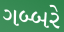
ગબ્બરે